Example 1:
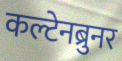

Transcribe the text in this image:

कल्टेनब्रुनर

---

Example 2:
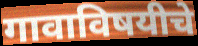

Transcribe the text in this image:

गावाविषयीचे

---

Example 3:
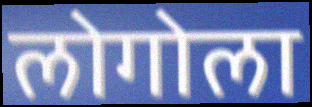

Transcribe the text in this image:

लोगोला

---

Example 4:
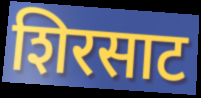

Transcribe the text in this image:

शिरसाट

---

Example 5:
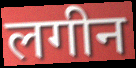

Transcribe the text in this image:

लगीन